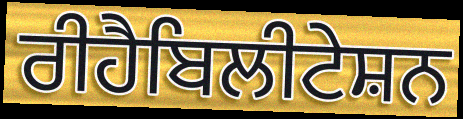
ਰੀਹੈਬਿਲੀਟੇਸ਼ਨ